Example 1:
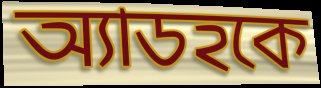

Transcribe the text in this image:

অ্যাডহকে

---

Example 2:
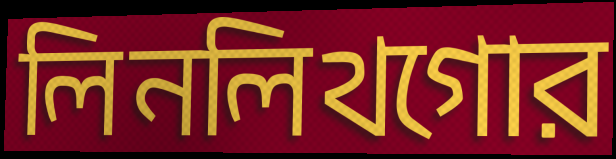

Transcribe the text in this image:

লিনলিথগোর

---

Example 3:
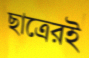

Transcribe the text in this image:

ছাত্রেরই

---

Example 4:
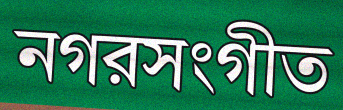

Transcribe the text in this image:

নগরসংগীত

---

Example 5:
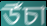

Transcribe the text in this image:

উঁচা